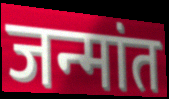
जन्मांत